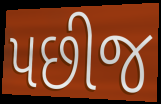
પછીજ